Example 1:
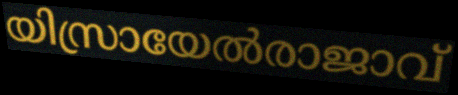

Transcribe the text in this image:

യിസ്രായേൽരാജാവ്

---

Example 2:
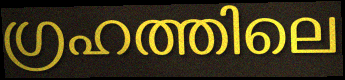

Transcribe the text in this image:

ഗ്രഹത്തിലെ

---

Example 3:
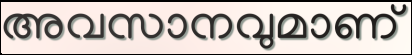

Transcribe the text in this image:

അവസാനവുമാണ്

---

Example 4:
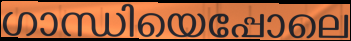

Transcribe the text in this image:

ഗാന്ധിയെപ്പോലെ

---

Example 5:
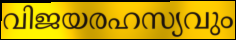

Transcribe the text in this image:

വിജയരഹസ്യവും